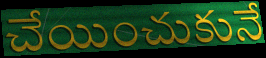
చేయించుకునే